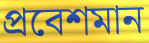
প্রবেশমান